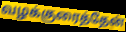
வழக்குரைத்தேன்